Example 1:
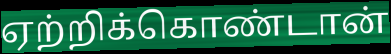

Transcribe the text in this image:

ஏற்றிக்கொண்டான்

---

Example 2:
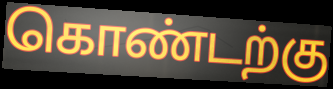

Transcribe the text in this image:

கொண்டற்கு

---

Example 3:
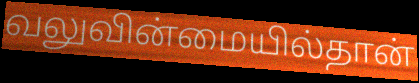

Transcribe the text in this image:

வலுவின்மையில்தான்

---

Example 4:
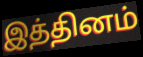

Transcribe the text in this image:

இத்தினம்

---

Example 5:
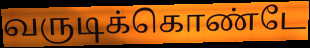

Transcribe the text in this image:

வருடிக்கொண்டே